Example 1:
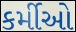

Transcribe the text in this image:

કર્મીઓ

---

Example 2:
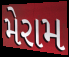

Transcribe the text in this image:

મેરામ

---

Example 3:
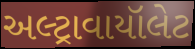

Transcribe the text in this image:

અલ્ટ્રાવાયૉલેટ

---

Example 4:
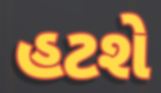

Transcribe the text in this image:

હટશે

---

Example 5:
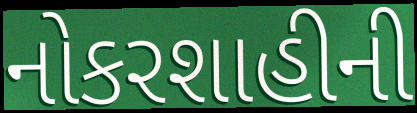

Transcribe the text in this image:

નોકરશાહીની